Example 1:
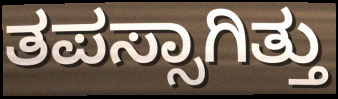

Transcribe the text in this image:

ತಪಸ್ಸಾಗಿತ್ತು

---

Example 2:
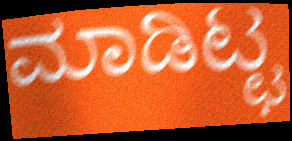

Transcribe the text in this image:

ಮಾಡಿಟ್ಟ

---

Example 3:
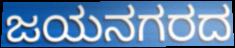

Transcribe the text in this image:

ಜಯನಗರದ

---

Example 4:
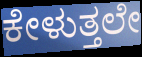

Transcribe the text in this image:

ಕೇಳುತ್ತಲೇ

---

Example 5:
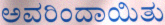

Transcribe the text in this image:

ಅವರಿಂದಾಯಿತು